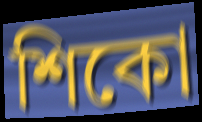
শিকো